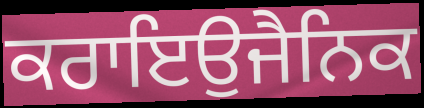
ਕਰਾਇਉਜੈਨਿਕ